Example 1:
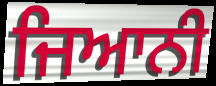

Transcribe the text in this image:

ਜਿਆਨੀ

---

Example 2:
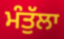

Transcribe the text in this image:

ਮੰਤੁੱਲਾ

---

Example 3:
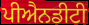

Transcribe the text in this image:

ਪੀਐਨਡੀਟੀ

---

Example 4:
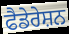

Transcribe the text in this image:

ਫੈਡੇਰੇਸ਼ਨ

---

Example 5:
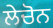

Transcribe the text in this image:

ਲੇਚੋਨ